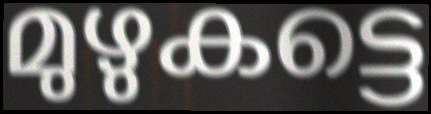
മുഴുകട്ടെ